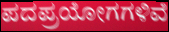
ಪದಪ್ರಯೋಗಗಳಿವೆ